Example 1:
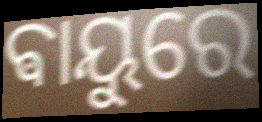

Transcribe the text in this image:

ଵାୟୁରେ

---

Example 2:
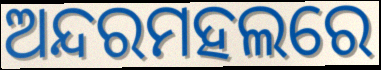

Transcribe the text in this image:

ଅନ୍ଦରମହଲରେ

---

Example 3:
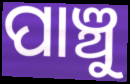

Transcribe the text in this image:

ପାଞ୍ଚୁ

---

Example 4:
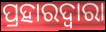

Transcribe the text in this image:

ପ୍ରହାରଦ୍ଵାରା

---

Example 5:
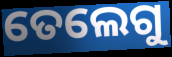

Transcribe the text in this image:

ତେଲେଗୁ